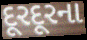
દૂરદૂરના